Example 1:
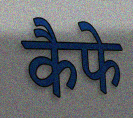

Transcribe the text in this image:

कैफे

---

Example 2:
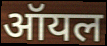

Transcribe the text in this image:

ऑयल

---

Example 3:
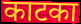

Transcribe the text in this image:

काटका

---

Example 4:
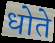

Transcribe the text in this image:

धोते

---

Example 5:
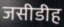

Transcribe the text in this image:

जसीडीह